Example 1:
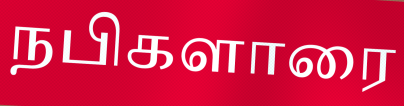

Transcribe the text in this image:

நபிகளாரை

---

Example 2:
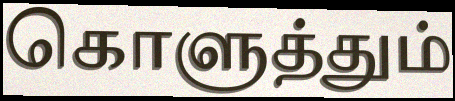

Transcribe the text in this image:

கொளுத்தும்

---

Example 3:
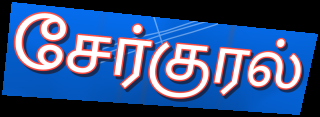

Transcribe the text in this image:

சேர்குரல்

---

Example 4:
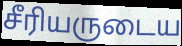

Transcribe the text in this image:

சீரியருடைய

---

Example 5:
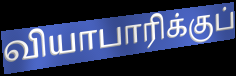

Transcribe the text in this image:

வியாபாரிக்குப்